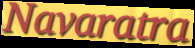
Navaratra